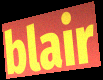
blair